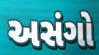
અસંગો